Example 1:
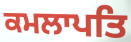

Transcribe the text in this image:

ਕਮਲਾਪਤਿ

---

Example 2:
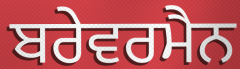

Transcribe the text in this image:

ਬਰੇਵਰਮੈਨ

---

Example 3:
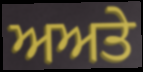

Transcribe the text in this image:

ਅਅਤੇ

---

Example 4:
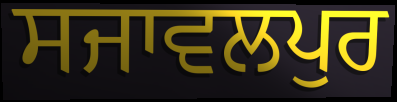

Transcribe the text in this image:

ਸਜਾਵਲਪੁਰ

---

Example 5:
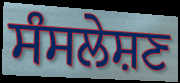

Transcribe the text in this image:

ਸੰਸਲੇਸ਼ਣ